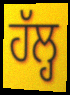
ਹੱਲ੍ਹ